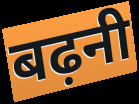
बढ़नी